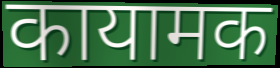
कायामक